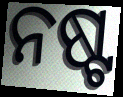
ନଷ୍ଟ